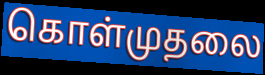
கொள்முதலை